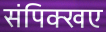
संपिक्खए